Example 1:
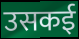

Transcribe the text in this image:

उसकई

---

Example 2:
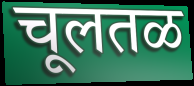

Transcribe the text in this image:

चूलतळ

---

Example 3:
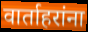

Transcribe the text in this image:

वार्ताहरांना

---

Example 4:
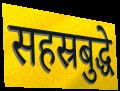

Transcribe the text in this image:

सहस्रबुद्धे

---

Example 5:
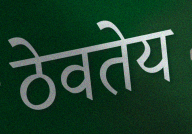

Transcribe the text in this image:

ठेवतेय